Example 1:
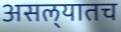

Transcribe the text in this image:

असल्यातच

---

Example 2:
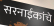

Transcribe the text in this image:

सरनाईकांचे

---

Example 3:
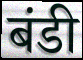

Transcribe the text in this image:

बंडी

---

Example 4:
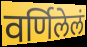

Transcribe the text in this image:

वर्णिलेलं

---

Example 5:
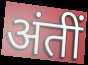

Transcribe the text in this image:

अंतीं